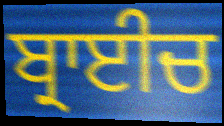
ਬ੍ਰਾਈਚ